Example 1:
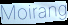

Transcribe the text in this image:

Moirang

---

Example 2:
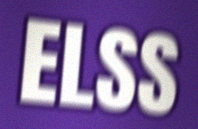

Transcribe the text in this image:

ELSS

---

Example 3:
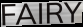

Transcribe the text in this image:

FAIRY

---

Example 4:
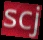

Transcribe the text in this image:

scj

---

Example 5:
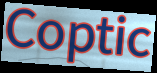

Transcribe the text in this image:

Coptic